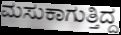
ಮಸುಕಾಗುತ್ತಿದ್ದ